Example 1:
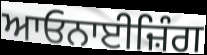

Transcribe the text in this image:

ਆਓਨਾਈਜ਼ਿੰਗ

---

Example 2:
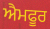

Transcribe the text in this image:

ਐਮਫੂਰ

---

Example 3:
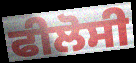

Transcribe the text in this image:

ਫੀਲੋਸੀ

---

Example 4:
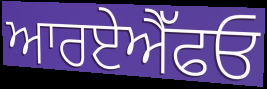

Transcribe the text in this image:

ਆਰਏਐੱਫਓ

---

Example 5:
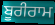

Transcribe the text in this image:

ਬੂਰੀਰਾਮ